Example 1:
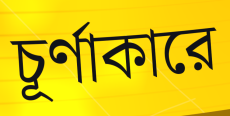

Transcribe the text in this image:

চূর্ণাকারে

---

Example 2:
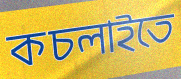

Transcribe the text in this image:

কচলাইতে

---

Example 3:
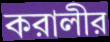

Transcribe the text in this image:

করালীর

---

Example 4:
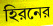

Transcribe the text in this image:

হিরনের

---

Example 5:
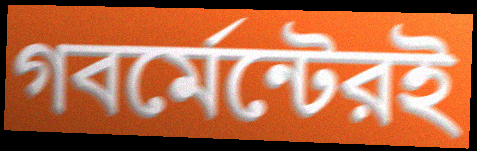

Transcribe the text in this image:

গবর্মেন্টেরই